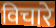
विचारे